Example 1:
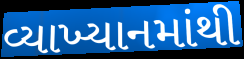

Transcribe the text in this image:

વ્યાખ્યાનમાંથી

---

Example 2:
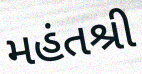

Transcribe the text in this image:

મહંતશ્રી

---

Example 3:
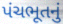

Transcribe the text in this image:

પંચભૂતનું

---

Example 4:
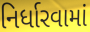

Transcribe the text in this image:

નિર્ધારવામાં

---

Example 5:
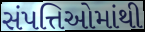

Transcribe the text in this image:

સંપત્તિઓમાંથી